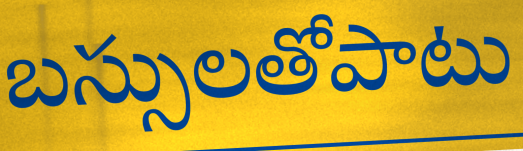
బస్సులతోపాటు